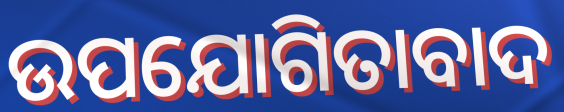
ଉପଯୋଗିତାବାଦ